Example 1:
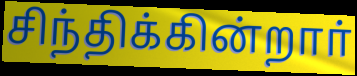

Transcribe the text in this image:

சிந்திக்கின்றார்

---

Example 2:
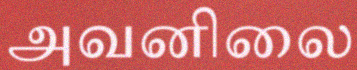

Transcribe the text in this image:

அவனிலை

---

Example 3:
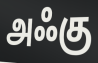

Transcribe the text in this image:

அஃகு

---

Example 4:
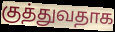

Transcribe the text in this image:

குத்துவதாக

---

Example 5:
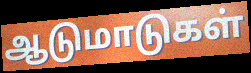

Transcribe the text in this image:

ஆடுமாடுகள்